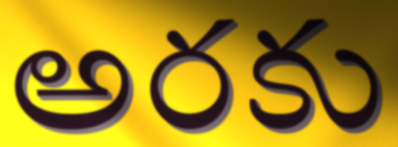
అరకు